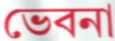
ভেবনা